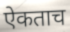
ऐकताच